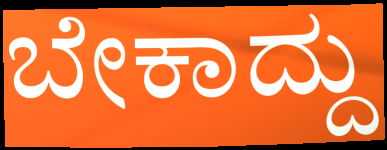
ಬೇಕಾದ್ದು